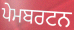
ਪੇਮਬਰਟਨ